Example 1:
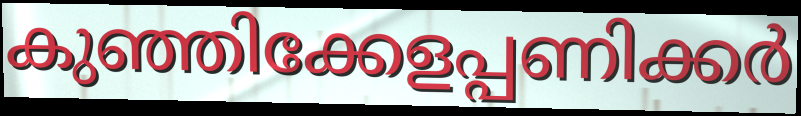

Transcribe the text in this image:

കുഞ്ഞിക്കേളപ്പണിക്കർ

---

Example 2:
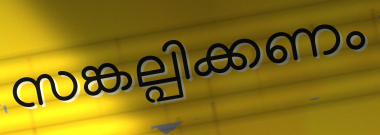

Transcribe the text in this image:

സങ്കല്പിക്കണം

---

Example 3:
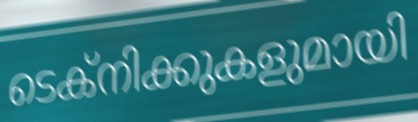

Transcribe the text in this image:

ടെക്നിക്കുകളുമായി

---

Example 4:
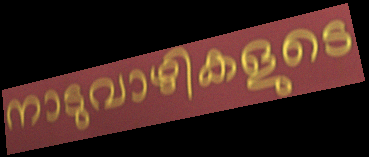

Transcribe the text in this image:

നാടുവാഴികളുടെ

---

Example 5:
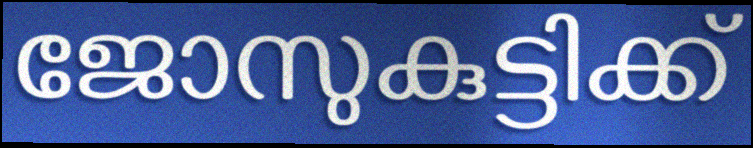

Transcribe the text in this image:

ജോസുകുട്ടിക്ക്